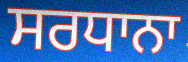
ਸਰਧਾਨਾ